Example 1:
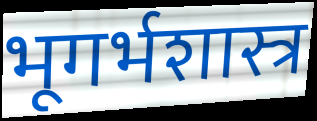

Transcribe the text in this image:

भूगर्भशास्त्र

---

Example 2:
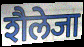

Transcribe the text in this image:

शैलेजा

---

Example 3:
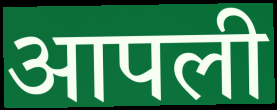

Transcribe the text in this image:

आपली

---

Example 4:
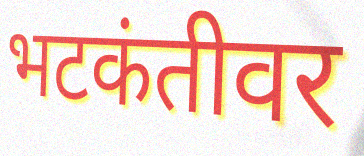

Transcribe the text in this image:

भटकंतीवर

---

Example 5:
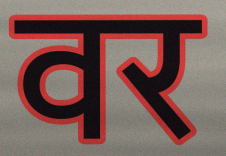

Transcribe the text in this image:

वर